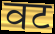
वट